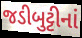
જડીબુટ્ટીનાં